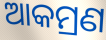
ଆକମ୍ରଣ